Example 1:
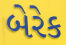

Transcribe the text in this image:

બેરેક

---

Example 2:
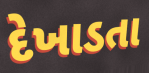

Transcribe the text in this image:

દેખાડતા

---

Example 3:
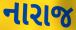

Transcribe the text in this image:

નારાજ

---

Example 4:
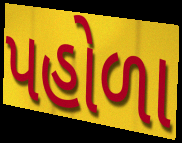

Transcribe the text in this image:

પહોળા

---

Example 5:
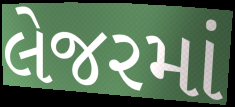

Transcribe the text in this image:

લેજરમાં